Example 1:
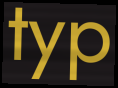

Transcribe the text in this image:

typ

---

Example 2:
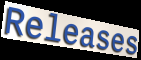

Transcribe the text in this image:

Releases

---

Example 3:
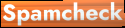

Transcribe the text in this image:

Spamcheck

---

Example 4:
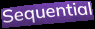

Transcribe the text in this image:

Sequential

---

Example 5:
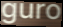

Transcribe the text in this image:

guro